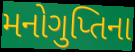
મનોગુપ્તિના